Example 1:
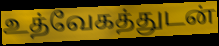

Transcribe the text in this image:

உத்வேகத்துடன்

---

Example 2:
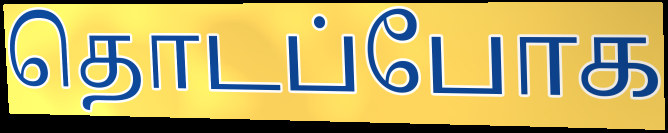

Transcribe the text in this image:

தொடப்போக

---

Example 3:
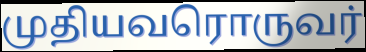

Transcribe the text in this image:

முதியவரொருவர்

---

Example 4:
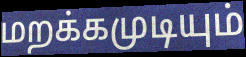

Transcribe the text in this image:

மறக்கமுடியும்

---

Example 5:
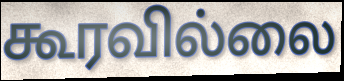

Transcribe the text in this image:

கூரவில்லை